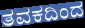
ತವಕದಿಂದ